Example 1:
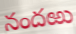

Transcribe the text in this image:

నందఱు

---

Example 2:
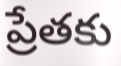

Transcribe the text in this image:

ప్రేతకు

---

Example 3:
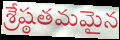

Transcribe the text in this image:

శ్రేష్ఠతమమైన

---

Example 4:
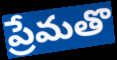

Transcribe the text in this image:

ప్రేమతొ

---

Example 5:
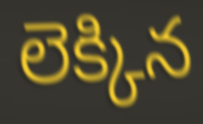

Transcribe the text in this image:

లెక్కిన